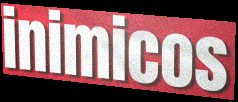
inimicos